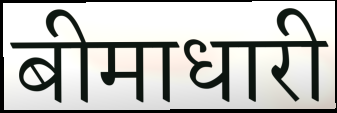
बीमाधारी